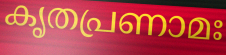
കൃതപ്രണാമഃ